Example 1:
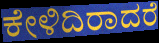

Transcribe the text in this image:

ಕೇಳಿದಿರಾದರೆ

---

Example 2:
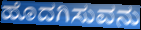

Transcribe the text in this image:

ಹೊದಗಿಸುವನು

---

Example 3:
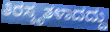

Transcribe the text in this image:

ತಿರಸ್ಕೃತಳಾದದ್ದು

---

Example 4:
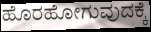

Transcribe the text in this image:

ಹೊರಹೋಗುವುದಕ್ಕೆ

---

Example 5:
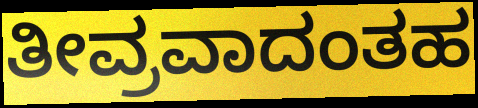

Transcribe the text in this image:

ತೀವ್ರವಾದಂತಹ